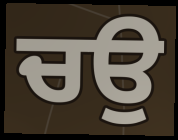
ਚਉ